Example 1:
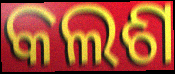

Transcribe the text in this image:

କଲଶ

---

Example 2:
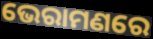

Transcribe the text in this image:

ଭେରାମଣରେ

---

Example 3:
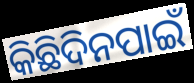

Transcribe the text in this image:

କିଛିଦିନପାଇଁ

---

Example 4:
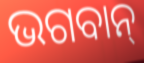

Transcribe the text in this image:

ଭଗବାନ୍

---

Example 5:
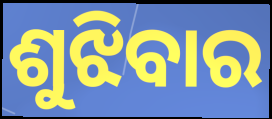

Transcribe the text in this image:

ଶୁଝିବାର